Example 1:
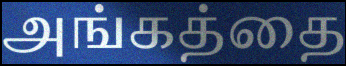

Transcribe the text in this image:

அங்கத்தை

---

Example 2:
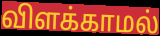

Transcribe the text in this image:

விளக்காமல்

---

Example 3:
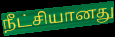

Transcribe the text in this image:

நீட்சியானது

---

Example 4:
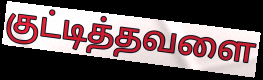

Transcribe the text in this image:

குட்டித்தவளை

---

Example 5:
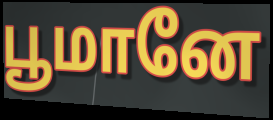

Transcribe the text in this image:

பூமானே